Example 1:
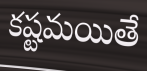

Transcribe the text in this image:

కష్టమయితే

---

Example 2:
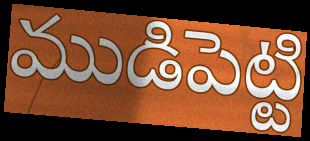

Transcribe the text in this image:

ముడిపెట్టి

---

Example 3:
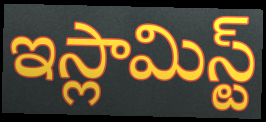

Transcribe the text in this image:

ఇస్లామిస్ట్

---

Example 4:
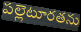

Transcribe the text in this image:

పల్లెటూరతను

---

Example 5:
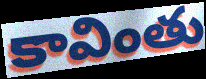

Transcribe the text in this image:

కావింతు